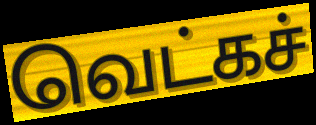
வெட்கச்